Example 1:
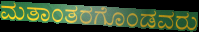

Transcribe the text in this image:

ಮತಾಂತರಗೊಂಡವರು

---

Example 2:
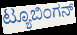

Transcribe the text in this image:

ಟ್ಯೂಬಿಂಗನ್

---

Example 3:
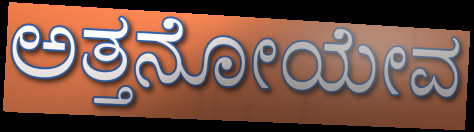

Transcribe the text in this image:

ಅತ್ತನೋಯೇವ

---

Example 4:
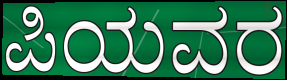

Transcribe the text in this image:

ಪಿಯವರ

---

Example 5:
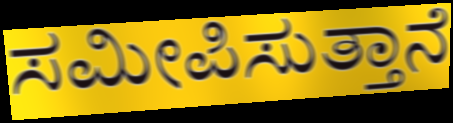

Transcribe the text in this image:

ಸಮೀಪಿಸುತ್ತಾನೆ